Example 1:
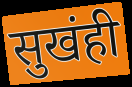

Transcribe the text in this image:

सुखंही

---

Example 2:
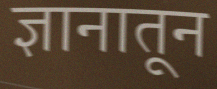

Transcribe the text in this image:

ज्ञानातून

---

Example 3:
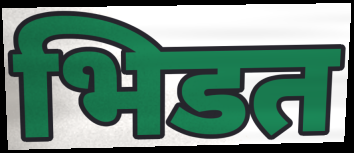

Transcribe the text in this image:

भिडत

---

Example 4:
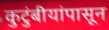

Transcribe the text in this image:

कुटुंबीयांपासून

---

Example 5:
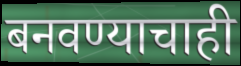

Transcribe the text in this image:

बनवण्याचाही